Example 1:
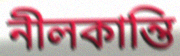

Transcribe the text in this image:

নীলকান্তি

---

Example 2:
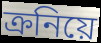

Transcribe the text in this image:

ক্রনিয়ে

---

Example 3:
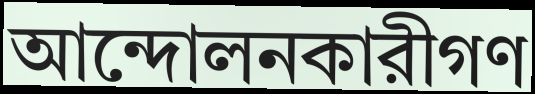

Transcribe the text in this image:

আন্দোলনকারীগণ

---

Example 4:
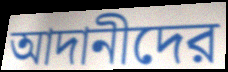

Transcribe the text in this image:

আদানীদের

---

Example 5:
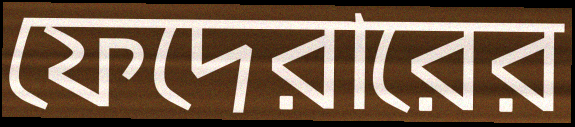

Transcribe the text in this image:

ফেদেরারের